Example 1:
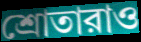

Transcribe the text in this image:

শ্রোতারাও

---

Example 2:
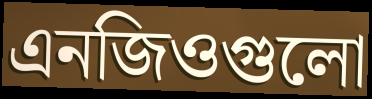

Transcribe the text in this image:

এনজিওগুলো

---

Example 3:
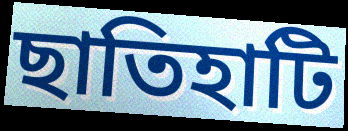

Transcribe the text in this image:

ছাতিহাটি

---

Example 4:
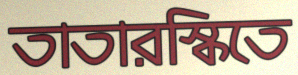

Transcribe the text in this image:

তাতারস্কিতে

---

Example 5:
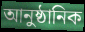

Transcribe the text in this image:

আনুষ্ঠানিক